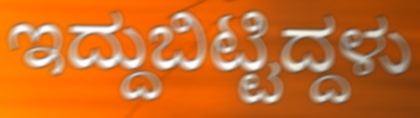
ಇದ್ದುಬಿಟ್ಟಿದ್ದಳು